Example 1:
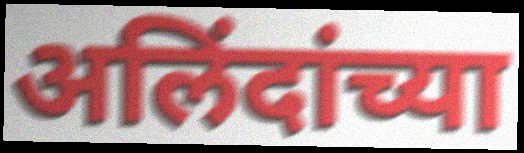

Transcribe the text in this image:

अलिंदांच्या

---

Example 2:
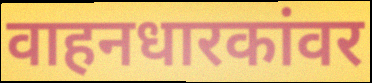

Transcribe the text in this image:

वाहनधारकांवर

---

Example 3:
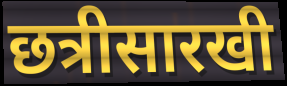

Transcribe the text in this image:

छत्रीसारखी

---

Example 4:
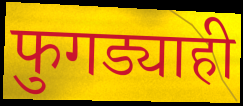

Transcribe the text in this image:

फुगड्याही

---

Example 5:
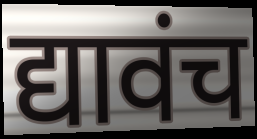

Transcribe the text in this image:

द्यावंच